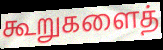
கூறுகளைத்